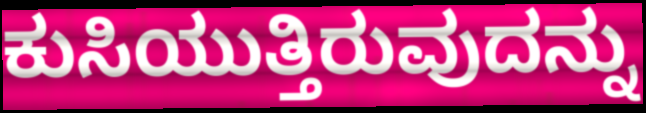
ಕುಸಿಯುತ್ತಿರುವುದನ್ನು